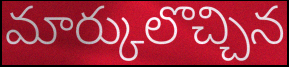
మార్కులొచ్చిన